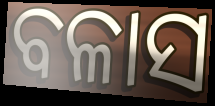
ବଳାସ